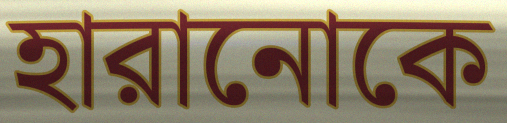
হারানোকে